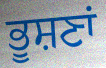
ਭੂਸ਼ਣਾਂ